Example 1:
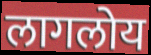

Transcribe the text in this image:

लागलोय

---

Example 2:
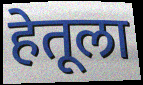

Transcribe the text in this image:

हेतूला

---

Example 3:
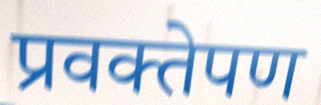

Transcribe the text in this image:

प्रवक्तेपण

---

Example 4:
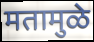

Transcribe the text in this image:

मतामुळे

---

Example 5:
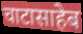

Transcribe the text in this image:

चाटासाहेब